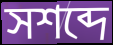
সশব্দে